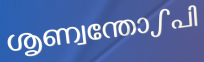
ശൃണ്വന്തോഽപി